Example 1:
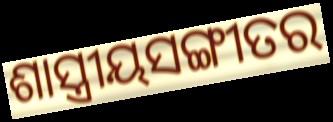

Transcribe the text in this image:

ଶାସ୍ତ୍ରୀୟସଙ୍ଗୀତର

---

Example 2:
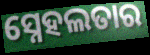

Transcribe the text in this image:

ସ୍ନେହଲତାର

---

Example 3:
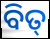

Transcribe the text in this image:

ବିତ୍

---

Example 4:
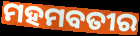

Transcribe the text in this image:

ମହମବତୀର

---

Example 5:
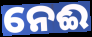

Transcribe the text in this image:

ନେଈ